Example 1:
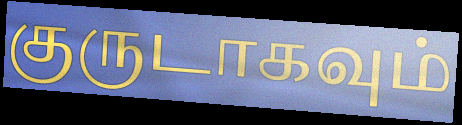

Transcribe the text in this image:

குருடாகவும்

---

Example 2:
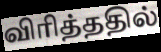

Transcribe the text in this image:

விரித்ததில்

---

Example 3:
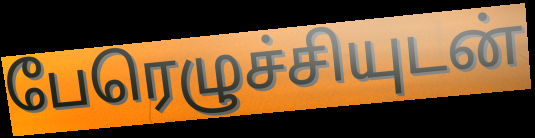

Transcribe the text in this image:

பேரெழுச்சியுடன்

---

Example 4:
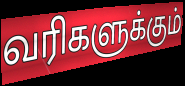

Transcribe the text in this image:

வரிகளுக்கும்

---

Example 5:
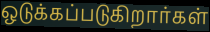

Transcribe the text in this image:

ஒடுக்கப்படுகிறார்கள்